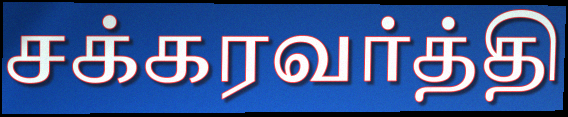
சக்கரவர்த்தி